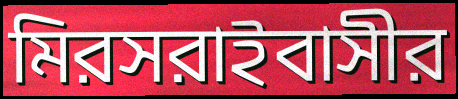
মিরসরাইবাসীর